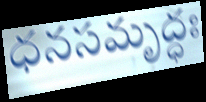
ధనసమృద్ధః